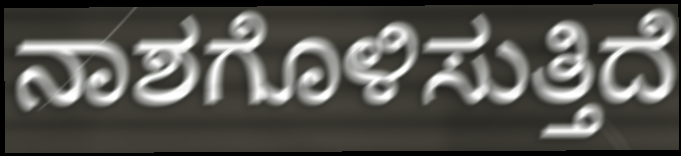
ನಾಶಗೊಳಿಸುತ್ತಿದೆ